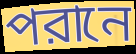
পরানে